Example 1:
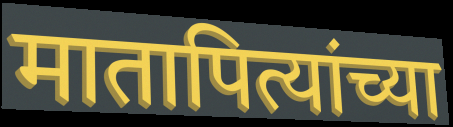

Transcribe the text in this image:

मातापित्यांच्या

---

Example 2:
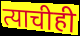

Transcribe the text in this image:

त्याचीही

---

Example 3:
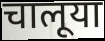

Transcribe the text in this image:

चालूया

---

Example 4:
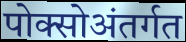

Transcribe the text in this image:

पोक्सोअंतर्गत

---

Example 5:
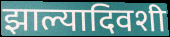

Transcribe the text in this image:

झाल्यादिवशी